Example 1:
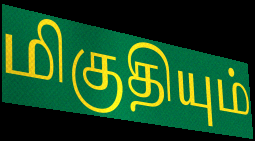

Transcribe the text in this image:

மிகுதியும்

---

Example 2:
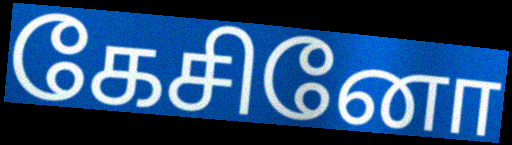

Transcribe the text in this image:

கேசினோ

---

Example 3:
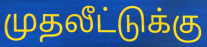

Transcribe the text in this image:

முதலீட்டுக்கு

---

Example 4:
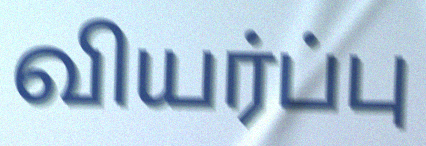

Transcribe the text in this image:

வியர்ப்பு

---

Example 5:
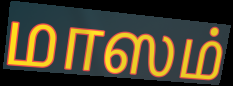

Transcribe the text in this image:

மாஸம்